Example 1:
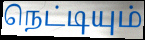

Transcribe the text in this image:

நெட்டியும்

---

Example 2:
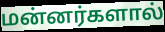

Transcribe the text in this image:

மன்னர்களால்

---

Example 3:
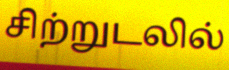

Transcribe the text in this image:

சிற்றுடலில்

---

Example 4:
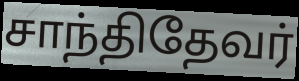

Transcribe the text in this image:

சாந்திதேவர்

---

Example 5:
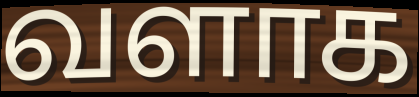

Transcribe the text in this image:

வளாக